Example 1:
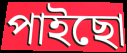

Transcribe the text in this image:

পাইছো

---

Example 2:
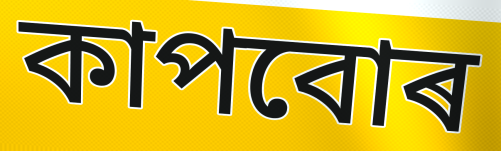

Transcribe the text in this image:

কাপবোৰ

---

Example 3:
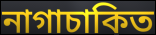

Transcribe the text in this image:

নাগাচাকিত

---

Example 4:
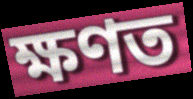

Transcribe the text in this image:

ক্ষণত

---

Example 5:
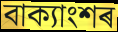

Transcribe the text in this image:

বাক্যাংশৰ